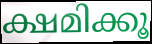
ക്ഷമിക്കൂ